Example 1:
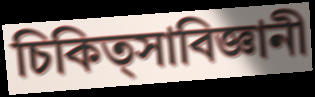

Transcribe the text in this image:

চিকিত্সাবিজ্ঞানী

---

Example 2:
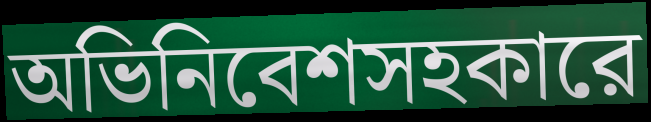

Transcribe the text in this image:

অভিনিবেশসহকারে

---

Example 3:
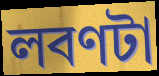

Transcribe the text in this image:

লবণটা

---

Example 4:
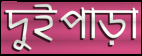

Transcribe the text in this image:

দুইপাড়া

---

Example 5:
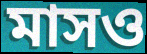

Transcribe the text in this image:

মাসও